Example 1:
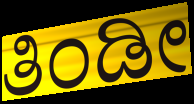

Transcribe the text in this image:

ತಿಂಡೀ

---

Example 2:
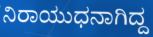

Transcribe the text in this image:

ನಿರಾಯುಧನಾಗಿದ್ದ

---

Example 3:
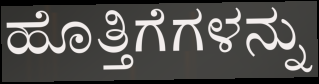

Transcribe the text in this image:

ಹೊತ್ತಿಗೆಗಳನ್ನು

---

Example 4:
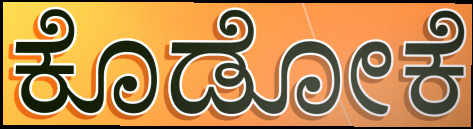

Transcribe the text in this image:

ಕೊಡೋಕೆ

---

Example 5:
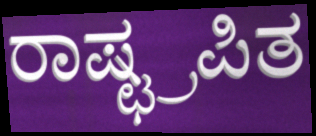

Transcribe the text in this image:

ರಾಷ್ಟ್ರಪಿತ